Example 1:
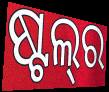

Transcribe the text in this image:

ଷ୍ଟଲ୍‌ର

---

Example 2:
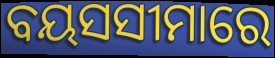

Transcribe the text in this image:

ବୟସସୀମାରେ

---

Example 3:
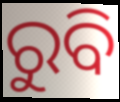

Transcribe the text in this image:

ରୁବି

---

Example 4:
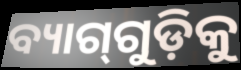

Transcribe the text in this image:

ବ୍ୟାଗ୍‍ଗୁଡ଼ିକୁ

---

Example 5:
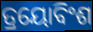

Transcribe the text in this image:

ତ୍ରୟୋବିଂଶ